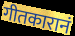
गीतकारानं